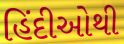
હિંદીઓથી